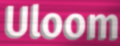
Uloom